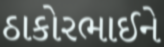
ઠાકોરભાઈને